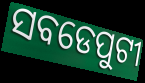
ସବଡେପୁଟୀ